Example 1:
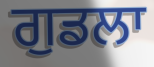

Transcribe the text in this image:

ਗੁਡਲਾ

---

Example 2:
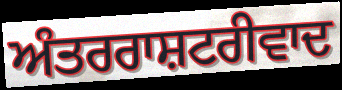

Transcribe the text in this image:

ਅੰਤਰਰਾਸ਼ਟਰੀਵਾਦ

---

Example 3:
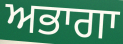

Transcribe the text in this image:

ਅਭਾਗਾ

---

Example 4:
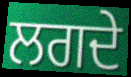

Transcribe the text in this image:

ਲਗਦੇ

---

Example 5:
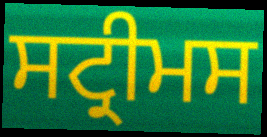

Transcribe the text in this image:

ਸਟ੍ਰੀਮਸ